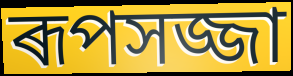
ৰূপসজ্জা